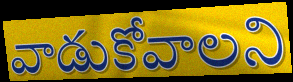
వాడుకోవాలని